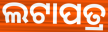
ଲଟାପତ୍ର